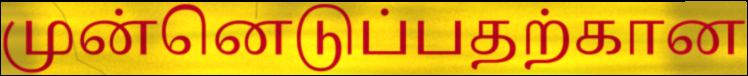
முன்னெடுப்பதற்கான